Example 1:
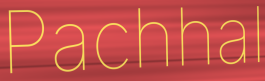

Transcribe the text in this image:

Pachhal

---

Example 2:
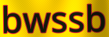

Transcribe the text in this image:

bwssb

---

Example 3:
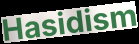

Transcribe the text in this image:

Hasidism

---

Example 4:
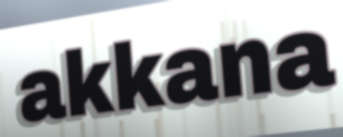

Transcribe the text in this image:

akkana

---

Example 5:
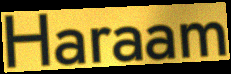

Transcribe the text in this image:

Haraam